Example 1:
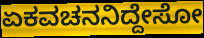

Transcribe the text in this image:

ಏಕವಚನನಿದ್ದೇಸೋ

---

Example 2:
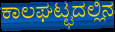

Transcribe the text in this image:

ಕಾಲಘಟ್ಟದಲ್ಲಿನ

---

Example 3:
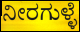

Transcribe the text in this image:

ನೀರಗುಳ್ಳೆ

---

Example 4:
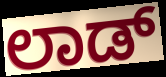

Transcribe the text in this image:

ಲಾಡ್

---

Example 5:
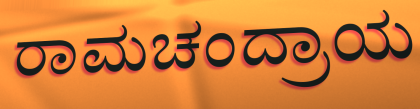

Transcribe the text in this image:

ರಾಮಚಂದ್ರಾಯ